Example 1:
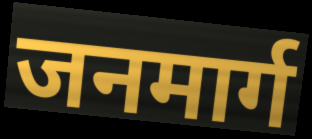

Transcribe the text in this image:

जनमार्ग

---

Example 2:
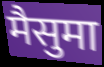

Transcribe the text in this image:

मैसुमा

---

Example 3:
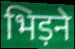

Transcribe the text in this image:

भिड़ने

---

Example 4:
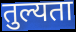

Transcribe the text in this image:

तुल्यता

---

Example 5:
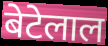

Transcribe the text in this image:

बेटेलाल